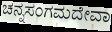
ಚನ್ನಸಂಗಮದೇವಾ